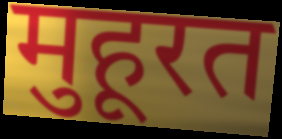
मुहूरत